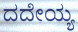
ದದೇಯ್ಯ